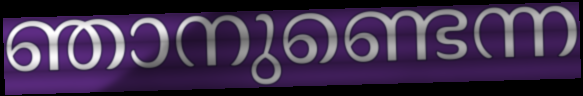
ഞാനുണ്ടെന്ന